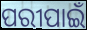
ପରୀପାଇଁ